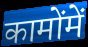
कामोंमें